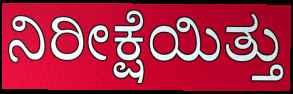
ನಿರೀಕ್ಷೆಯಿತ್ತು